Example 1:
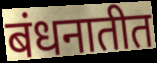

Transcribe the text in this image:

बंधनातीत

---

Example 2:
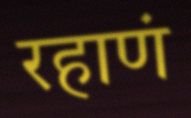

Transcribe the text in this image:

रहाणं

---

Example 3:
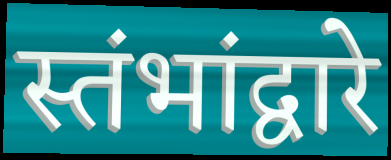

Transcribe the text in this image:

स्तंभांद्वारे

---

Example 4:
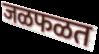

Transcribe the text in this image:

जळफळत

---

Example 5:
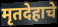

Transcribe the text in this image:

मृतदेहाचे